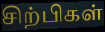
சிற்பிகள்